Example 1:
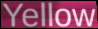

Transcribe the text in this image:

Yellow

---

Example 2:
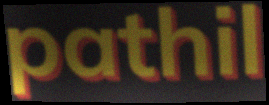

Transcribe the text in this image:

pathil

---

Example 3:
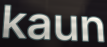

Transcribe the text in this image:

kaun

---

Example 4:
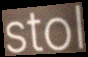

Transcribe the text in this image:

stol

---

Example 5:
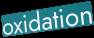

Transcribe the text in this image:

oxidation